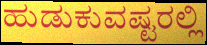
ಹುಡುಕುವಷ್ಟರಲ್ಲಿ